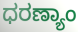
ಧರಣ್ಯಾಂ